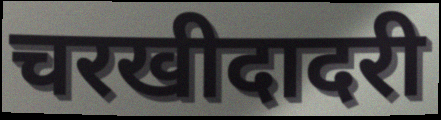
चरखीदादरी